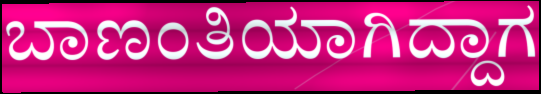
ಬಾಣಂತಿಯಾಗಿದ್ದಾಗ